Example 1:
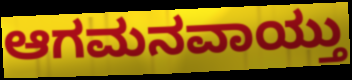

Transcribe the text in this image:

ಆಗಮನವಾಯ್ತು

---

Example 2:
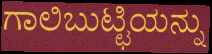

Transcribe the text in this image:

ಗಾಲಿಬುಟ್ಟಿಯನ್ನು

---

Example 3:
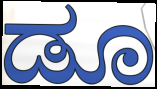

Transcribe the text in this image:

ಡೂ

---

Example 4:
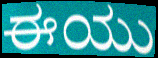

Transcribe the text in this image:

ಈಯು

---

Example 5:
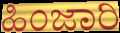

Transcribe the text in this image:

ಹಿಂಜಾರಿ